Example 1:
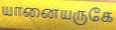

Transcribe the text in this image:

யானையருகே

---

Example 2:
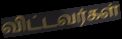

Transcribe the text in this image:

விட்டவர்கள்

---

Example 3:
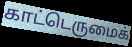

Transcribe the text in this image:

காட்டெருமைக்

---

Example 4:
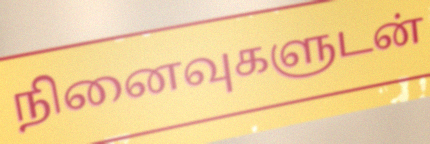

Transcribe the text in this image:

நினைவுகளுடன்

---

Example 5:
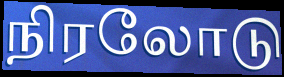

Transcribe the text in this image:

நிரலோடு